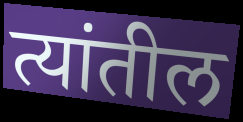
त्यांतील